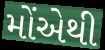
મોંએથી